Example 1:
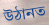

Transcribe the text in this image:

উঠানত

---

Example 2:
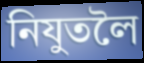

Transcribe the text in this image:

নিযুতলৈ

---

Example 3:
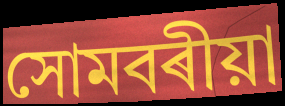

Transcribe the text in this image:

সোমবৰীয়া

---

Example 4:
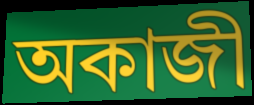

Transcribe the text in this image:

অকাজী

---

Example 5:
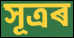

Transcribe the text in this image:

সূত্ৰৰ